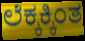
ಲೆಕ್ಕಕ್ಕಿಂತ